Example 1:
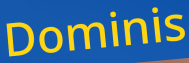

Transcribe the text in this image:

Dominis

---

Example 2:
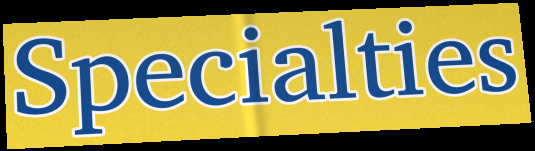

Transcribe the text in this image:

Specialties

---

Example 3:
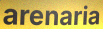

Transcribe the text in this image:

arenaria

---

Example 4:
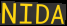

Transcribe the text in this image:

NIDA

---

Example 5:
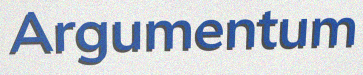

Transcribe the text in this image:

Argumentum